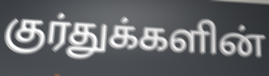
குர்துக்களின்